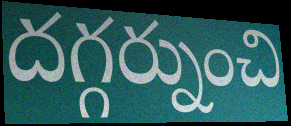
దగ్గర్నుంచి